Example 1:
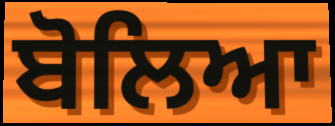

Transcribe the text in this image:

ਬੋਲਿਆ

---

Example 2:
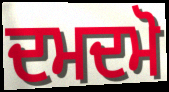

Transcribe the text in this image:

ਦਮਦਮੋ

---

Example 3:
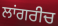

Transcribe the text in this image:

ਲਾਂਗਰੀਚ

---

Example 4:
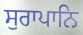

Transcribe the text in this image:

ਸੁਰਾਪਾਨਿ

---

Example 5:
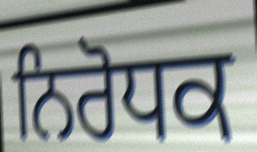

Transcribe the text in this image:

ਨਿਰੋਧਕ